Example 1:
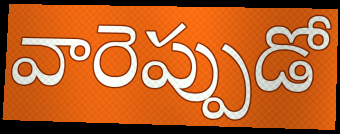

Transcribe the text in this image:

వారెప్పుడో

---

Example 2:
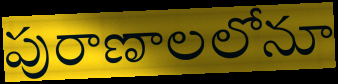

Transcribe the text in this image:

పురాణాలలోనూ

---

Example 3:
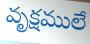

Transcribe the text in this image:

వృక్షములే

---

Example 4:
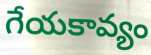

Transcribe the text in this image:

గేయకావ్యం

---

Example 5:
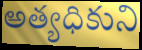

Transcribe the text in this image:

అత్యధికుని